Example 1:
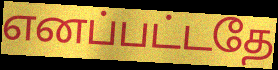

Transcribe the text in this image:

எனப்பட்டதே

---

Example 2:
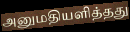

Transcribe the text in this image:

அனுமதியளித்தது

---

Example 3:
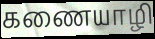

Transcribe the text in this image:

கணையாழி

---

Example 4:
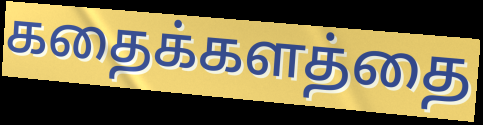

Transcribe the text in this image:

கதைக்களத்தை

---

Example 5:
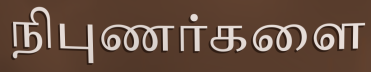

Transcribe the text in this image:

நிபுணர்களை